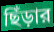
ছিঁড়ার